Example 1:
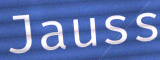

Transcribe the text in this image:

Jauss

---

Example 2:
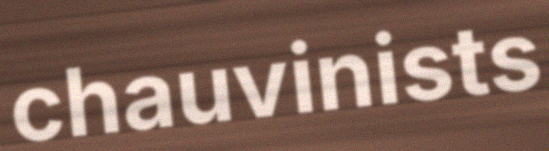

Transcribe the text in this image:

chauvinists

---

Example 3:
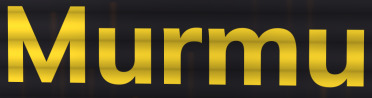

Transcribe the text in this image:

Murmu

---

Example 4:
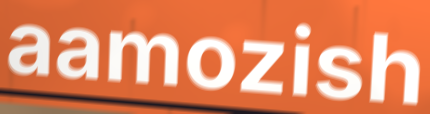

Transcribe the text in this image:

aamozish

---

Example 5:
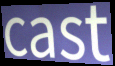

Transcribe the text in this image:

cast